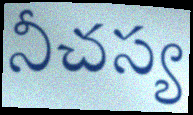
నీచస్య